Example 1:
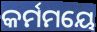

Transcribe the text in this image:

କର୍ମମୟେ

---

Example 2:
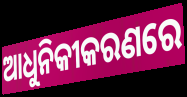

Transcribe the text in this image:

ଆଧୁନିକୀକରଣରେ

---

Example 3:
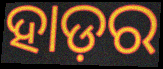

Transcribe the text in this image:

ହାଡ଼ର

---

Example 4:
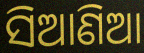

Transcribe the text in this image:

ସିଆଣିଆ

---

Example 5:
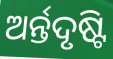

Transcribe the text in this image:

ଅର୍ନ୍ତଦୃଷ୍ଟି